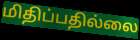
மிதிப்பதில்லை